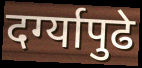
दर्ग्यापुढे